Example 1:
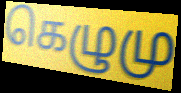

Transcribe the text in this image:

கெழுமு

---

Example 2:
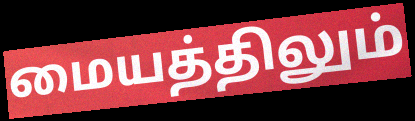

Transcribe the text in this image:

மையத்திலும்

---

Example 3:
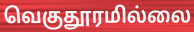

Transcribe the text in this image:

வெகுதூரமில்லை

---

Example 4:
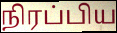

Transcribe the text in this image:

நிரப்பிய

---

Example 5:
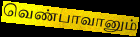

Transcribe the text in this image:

வெண்பாவானும்